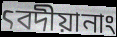
ৎবদীয়ানাং